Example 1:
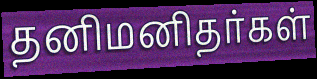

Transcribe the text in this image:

தனிமனிதர்கள்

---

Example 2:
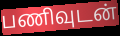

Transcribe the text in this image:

பணிவுடன்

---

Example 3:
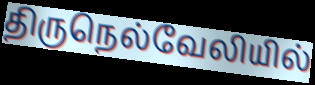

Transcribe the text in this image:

திருநெல்வேலியில்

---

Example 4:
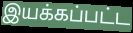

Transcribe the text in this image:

இயக்கப்பட்ட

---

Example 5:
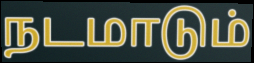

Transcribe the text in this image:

நடமாடும்